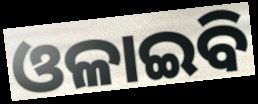
ଓଳାଇବି